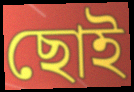
ছোই